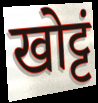
खोट्टं